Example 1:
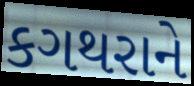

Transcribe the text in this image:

કગથરાને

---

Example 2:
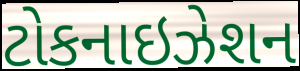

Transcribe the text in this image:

ટોકનાઇઝેશન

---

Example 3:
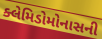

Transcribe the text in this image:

ક્લેમિડોમોનાસની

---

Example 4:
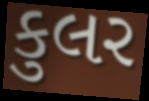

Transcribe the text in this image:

કુલર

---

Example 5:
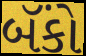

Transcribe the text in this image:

બૅંકો